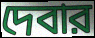
দেবার